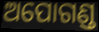
ଅପୋଗଣ୍ଡ